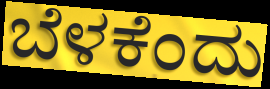
ಬೆಳಕೆಂದು